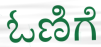
ಓಣಿಗೆ